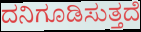
ದನಿಗೂಡಿಸುತ್ತದೆ